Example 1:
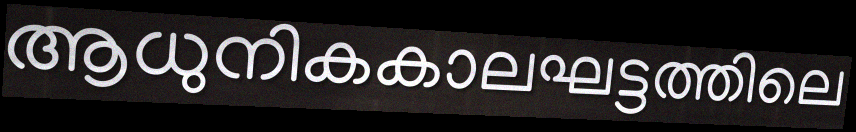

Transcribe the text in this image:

ആധുനികകാലഘട്ടത്തിലെ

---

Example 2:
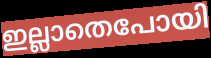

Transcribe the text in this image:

ഇല്ലാതെപോയി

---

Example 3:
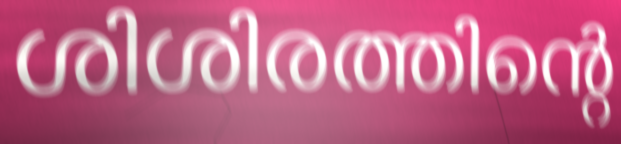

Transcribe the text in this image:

ശിശിരത്തിന്റെ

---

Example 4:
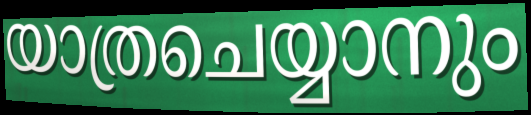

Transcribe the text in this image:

യാത്രചെയ്യാനും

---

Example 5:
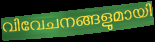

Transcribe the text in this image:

വിവേചനങ്ങളുമായി